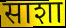
साशा